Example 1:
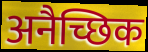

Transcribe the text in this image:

अनैच्छिक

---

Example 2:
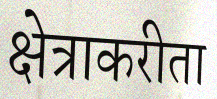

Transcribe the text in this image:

क्षेत्राकरीता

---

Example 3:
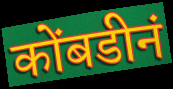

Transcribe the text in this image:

कोंबडीनं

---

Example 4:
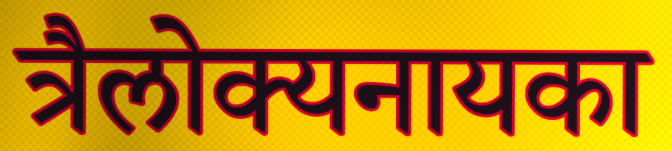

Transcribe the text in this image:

त्रैलोक्यनायका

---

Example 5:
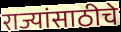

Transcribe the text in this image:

राज्यांसाठीचे